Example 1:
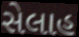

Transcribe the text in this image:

સેલાહ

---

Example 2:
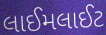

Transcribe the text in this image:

લાઈમલાઈટ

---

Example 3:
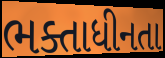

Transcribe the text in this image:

ભક્તાધીનતા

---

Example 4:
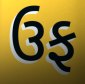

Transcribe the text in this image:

ઉફ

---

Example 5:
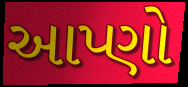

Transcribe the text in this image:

આપ્ણો